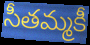
సీతమ్మకీ